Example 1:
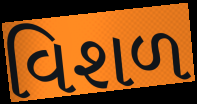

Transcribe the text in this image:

વિશળ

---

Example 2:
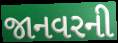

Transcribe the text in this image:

જાનવરની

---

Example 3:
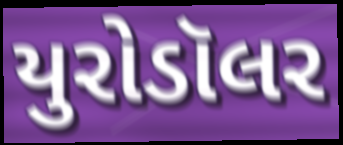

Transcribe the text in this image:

યુરોડૉલર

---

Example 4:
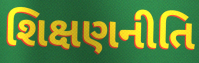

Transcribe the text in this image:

શિક્ષણનીતિ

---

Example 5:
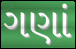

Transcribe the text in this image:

ગણાં